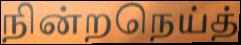
நின்றநெய்த்